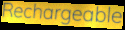
Rechargeable